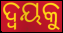
ଦ୍ୱୟକୁ